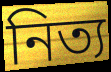
নিত্য